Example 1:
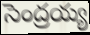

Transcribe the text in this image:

సెంద్రయ్య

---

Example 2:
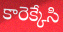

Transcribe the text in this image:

కారెక్కేసి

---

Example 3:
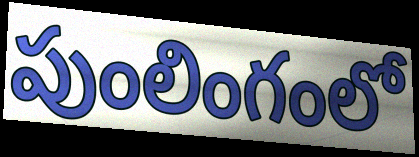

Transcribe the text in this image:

పుంలింగంలో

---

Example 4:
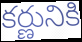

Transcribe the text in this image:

కర్ణునికి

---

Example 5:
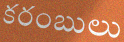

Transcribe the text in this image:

కరంబులు